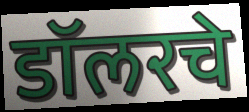
डॉलरचे